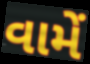
વામેં